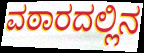
ವಠಾರದಲ್ಲಿನ